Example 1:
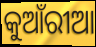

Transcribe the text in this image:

କୁଆଁରୀଆ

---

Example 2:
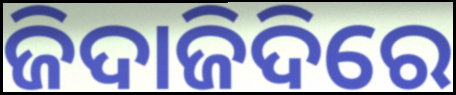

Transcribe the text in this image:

ଜିଦାଜିଦିରେ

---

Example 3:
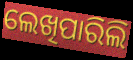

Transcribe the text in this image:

ଲେଖିପାରିଲି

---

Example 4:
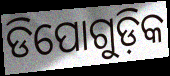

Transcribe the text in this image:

ଡିପୋଗୁଡ଼ିକ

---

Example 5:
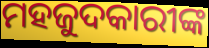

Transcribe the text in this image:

ମହଜୁଦକାରୀଙ୍କ